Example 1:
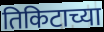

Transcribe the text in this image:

तिकिटाच्या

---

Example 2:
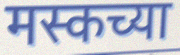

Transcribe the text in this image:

मस्कच्या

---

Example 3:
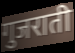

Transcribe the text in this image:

गुजराती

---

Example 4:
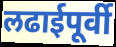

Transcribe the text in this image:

लढाईपूर्वी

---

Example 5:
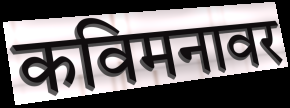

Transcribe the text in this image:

कविमनावर